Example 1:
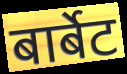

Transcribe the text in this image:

बार्बेट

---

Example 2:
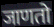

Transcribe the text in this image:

जाणतो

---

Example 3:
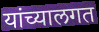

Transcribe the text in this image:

यांच्यालगत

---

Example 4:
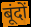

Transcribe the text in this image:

बूंदों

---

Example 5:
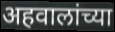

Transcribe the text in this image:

अहवालांच्या